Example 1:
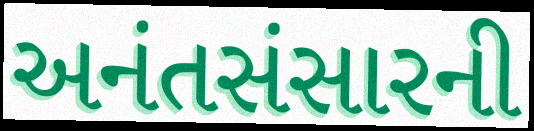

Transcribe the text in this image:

અનંતસંસારની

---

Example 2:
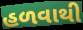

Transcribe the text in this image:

હળવાથી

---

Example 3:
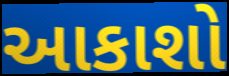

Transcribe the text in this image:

આકાશો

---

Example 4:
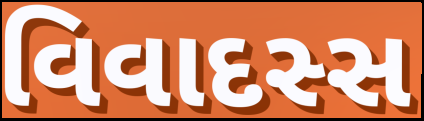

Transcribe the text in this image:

વિવાદસ્સ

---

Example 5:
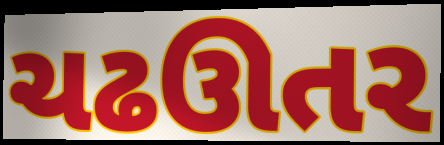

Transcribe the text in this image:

ચઢઊતર